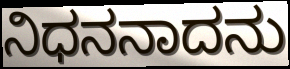
ನಿಧನನಾದನು